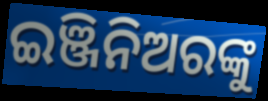
ଇଞ୍ଜିନିଅରଙ୍କୁ